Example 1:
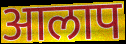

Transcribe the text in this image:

आलाप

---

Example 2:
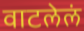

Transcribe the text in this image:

वाटलेलं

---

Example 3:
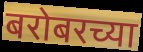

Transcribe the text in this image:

बरोबरच्या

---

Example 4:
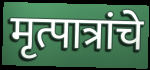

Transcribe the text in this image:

मृत्पात्रांचे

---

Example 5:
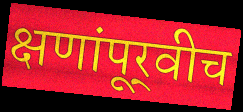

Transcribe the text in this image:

क्षणांपूर्वीच